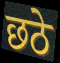
छठे